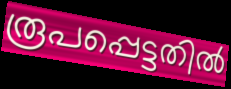
രൂപപ്പെട്ടതിൽ